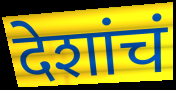
देशांचं